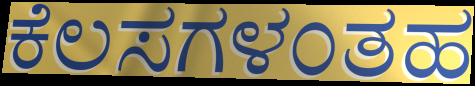
ಕೆಲಸಗಳಂತಹ